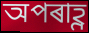
অপৰাহ্ণ